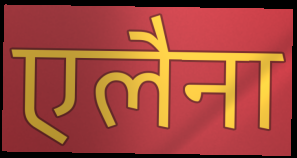
एलैना